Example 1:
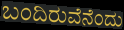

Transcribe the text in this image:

ಬಂದಿರುವೆನೆಂದು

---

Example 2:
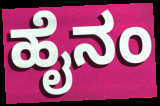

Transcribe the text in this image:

ಹೈನಂ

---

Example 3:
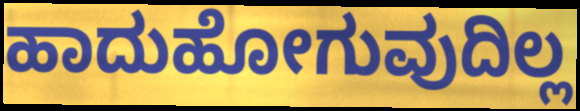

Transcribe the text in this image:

ಹಾದುಹೋಗುವುದಿಲ್ಲ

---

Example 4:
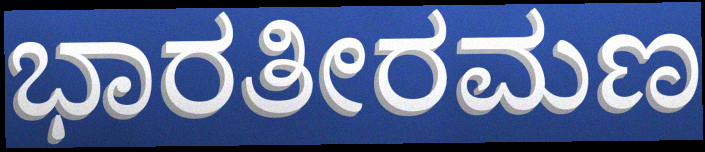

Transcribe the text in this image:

ಭಾರತೀರಮಣ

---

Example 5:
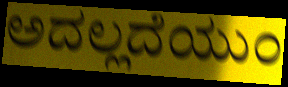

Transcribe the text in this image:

ಅದಲ್ಲದೆಯುಂ